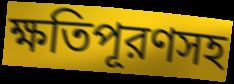
ক্ষতিপূরণসহ